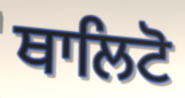
ਥਾਲਿਟੋ